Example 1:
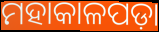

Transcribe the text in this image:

ମହାକାଳପଡ଼ା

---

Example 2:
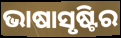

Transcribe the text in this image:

ଭାଷାସୃଷ୍ଟିର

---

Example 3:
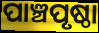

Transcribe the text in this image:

ପାଞ୍ଚପୃଷ୍ଠା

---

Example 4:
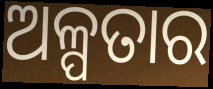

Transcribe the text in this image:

ଅଳ୍ପତାର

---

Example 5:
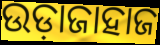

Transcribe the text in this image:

ଉଡ଼ାଜାହାଜ